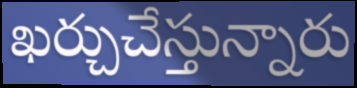
ఖర్చుచేస్తున్నారు